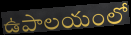
ఉపాలయంలో